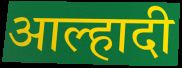
आल्हादी